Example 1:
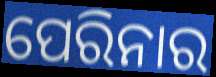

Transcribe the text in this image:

ପେରିନାର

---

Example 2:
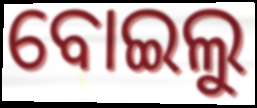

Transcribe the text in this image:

ବୋଇଲୁ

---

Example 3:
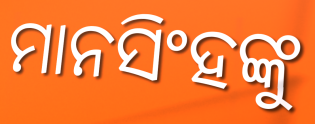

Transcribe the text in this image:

ମାନସିଂହଙ୍କୁ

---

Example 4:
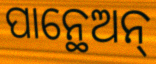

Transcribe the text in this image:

ପାନ୍ଥେଅନ୍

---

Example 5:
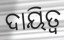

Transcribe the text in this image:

ଦାୟିତ୍ବ